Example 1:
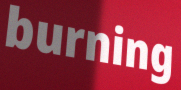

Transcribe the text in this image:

burning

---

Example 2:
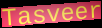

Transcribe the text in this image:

Tasveer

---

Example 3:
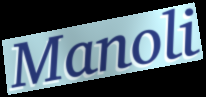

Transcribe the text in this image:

Manoli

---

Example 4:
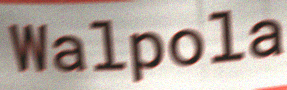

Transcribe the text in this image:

Walpola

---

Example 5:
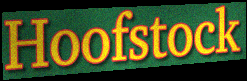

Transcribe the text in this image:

Hoofstock